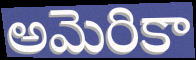
అమెరికా